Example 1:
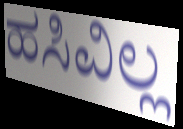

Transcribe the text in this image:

ಹಸಿವಿಲ್ಲ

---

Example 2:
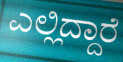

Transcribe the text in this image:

ಎಲ್ಲಿದ್ದಾರೆ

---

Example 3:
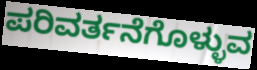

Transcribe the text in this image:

ಪರಿವರ್ತನೆಗೊಳ್ಳುವ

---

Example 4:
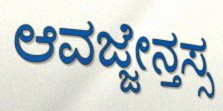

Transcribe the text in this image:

ಆವಜ್ಜೇನ್ತಸ್ಸ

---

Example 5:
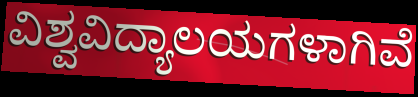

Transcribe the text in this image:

ವಿಶ್ವವಿದ್ಯಾಲಯಗಳಾಗಿವೆ